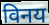
विनय